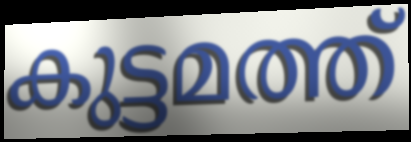
കുട്ടമത്ത്